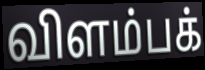
விளம்பக்